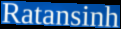
Ratansinh